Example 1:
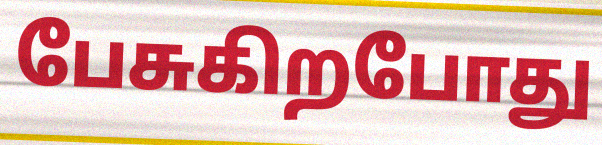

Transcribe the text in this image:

பேசுகிறபோது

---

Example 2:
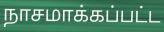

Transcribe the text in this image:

நாசமாக்கப்பட்ட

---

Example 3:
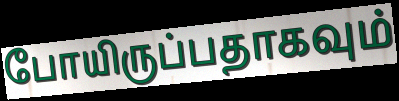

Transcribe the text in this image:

போயிருப்பதாகவும்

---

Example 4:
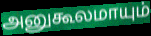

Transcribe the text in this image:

அனுகூலமாயும்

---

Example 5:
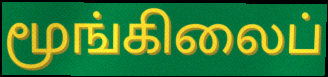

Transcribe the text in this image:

மூங்கிலைப்